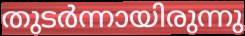
തുടർന്നായിരുന്നു